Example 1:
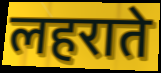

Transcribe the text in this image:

लहराते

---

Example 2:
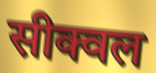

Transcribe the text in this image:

सीक्वल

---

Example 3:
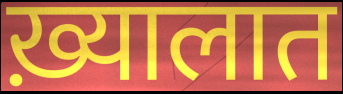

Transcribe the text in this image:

ख़्यालात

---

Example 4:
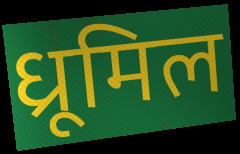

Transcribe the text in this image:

ध्रूमिल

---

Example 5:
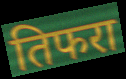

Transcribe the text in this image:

तिफरा